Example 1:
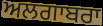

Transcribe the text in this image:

ਅਲਗਾਬਰਾ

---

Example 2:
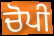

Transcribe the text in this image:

ਚੋਪੀ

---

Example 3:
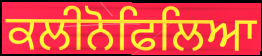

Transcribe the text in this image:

ਕਲੀਨੋਫਿਲਿਆ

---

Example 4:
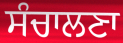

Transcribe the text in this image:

ਸੰਚਾਲਣਾ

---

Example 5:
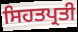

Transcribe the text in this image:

ਸਿਹਤਪ੍ਰਤੀ